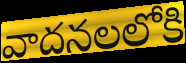
వాదనలలోకి